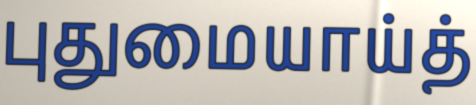
புதுமையாய்த்